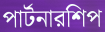
পার্টনারশিপ